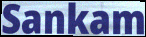
Sankam